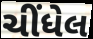
ચીંધેલ